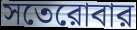
সতেরোবার